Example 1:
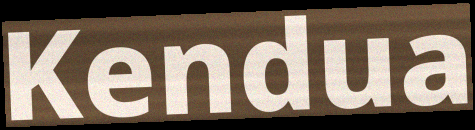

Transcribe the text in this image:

Kendua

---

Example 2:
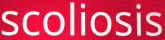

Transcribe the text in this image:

scoliosis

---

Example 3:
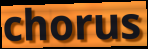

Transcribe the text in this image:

chorus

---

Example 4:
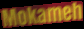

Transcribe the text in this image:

Mokameh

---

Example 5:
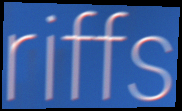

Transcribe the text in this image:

riffs